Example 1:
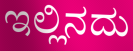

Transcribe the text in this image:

ಇಲ್ಲಿನದು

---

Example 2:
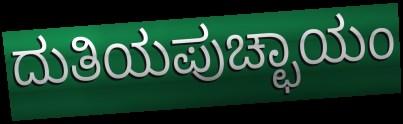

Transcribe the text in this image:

ದುತಿಯಪುಚ್ಛಾಯಂ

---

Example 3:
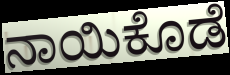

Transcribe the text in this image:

ನಾಯಿಕೊಡೆ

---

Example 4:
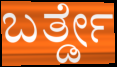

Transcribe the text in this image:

ಬರ್ತ್ಡೇ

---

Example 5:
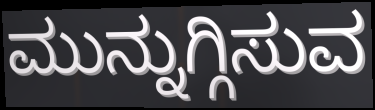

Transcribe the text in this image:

ಮುನ್ನುಗ್ಗಿಸುವ